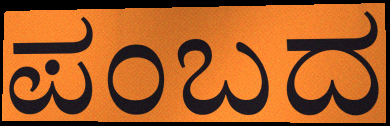
ಪಂಬದ